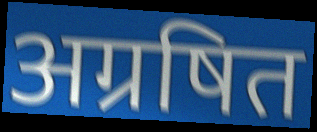
अग्रषित